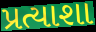
પ્રત્યાશા